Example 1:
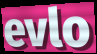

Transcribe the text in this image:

evlo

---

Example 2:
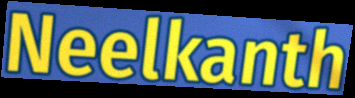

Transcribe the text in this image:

Neelkanth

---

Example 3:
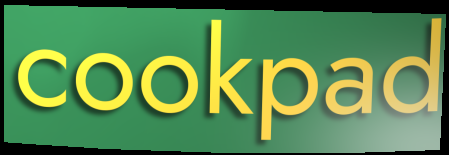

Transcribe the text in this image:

cookpad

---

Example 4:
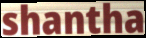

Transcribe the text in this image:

shantha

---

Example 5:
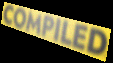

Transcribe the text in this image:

COMPILED